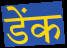
डेंक